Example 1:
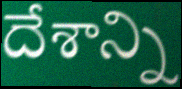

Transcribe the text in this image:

దేశాన్ని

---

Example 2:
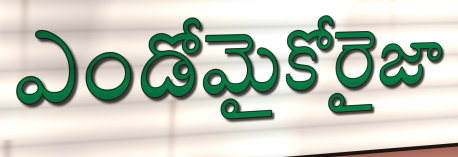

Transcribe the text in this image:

ఎండోమైకోరైజా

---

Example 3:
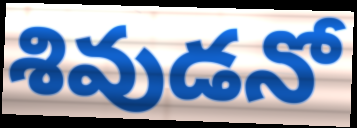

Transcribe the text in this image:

శివుడనో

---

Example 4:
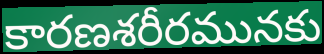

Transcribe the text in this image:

కారణశరీరమునకు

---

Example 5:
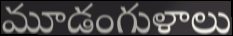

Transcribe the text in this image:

మూడంగుళాలు